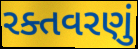
રક્તવરણું